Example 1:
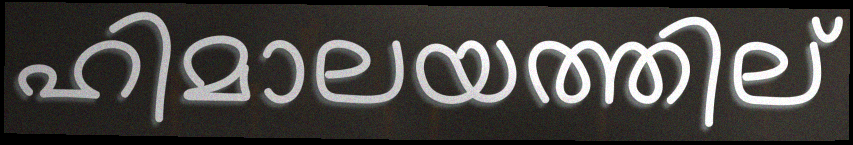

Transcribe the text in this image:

ഹിമാലയത്തില്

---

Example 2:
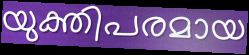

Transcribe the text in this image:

യുക്തിപരമായ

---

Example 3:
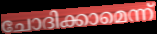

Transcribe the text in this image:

ചോദിക്കാമെന്ന്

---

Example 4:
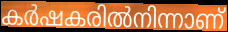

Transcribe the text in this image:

കർഷകരിൽനിന്നാണ്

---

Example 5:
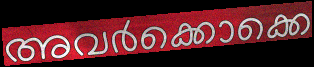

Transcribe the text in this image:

അവർക്കൊക്കെ